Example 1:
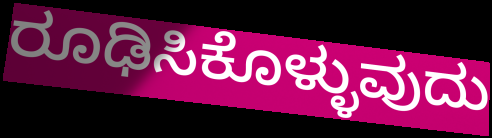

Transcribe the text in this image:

ರೂಢಿಸಿಕೊಳ್ಳುವುದು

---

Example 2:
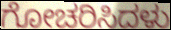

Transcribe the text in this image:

ಗೋಚರಿಸಿದಳು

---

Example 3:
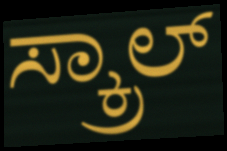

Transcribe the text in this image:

ಸ್ಕ್ರಾಲ್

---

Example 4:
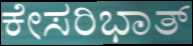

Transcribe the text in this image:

ಕೇಸರಿಭಾತ್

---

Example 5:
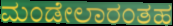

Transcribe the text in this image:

ಮಂಡೇಲಾರಂತಹ